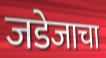
जडेजाचा